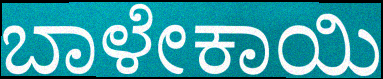
ಬಾಳೇಕಾಯಿ